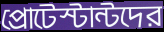
প্রোটেস্টান্টদের